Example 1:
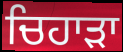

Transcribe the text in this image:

ਚਿਹਾੜਾ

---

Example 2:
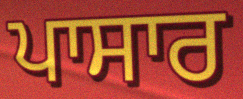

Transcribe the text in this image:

ਪਾਸਾਰ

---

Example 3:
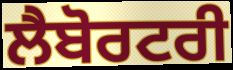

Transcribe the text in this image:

ਲੈਬੋਰਟਰੀ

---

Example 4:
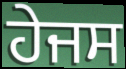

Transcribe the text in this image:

ਹੇਜਸ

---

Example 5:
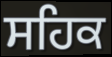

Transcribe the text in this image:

ਸਹਿਕ